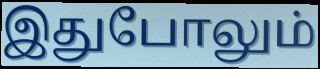
இதுபோலும்